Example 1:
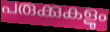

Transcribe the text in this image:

പരുക്കുകളും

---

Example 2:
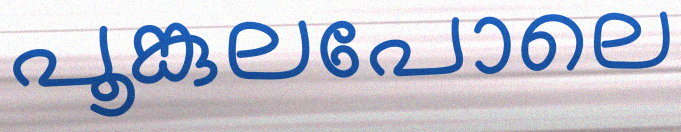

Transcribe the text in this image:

പൂങ്കുലപോലെ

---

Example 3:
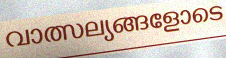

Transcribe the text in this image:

വാത്സല്യങ്ങളോടെ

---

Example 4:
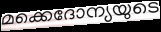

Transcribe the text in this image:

മക്കെദോന്യയുടെ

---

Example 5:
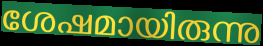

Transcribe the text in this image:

ശേഷമായിരുന്നു